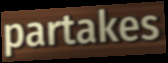
partakes